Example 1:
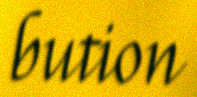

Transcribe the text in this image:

bution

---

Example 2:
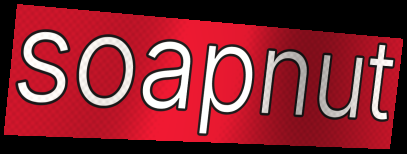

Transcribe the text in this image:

soapnut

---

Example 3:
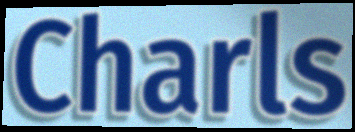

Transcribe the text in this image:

Charls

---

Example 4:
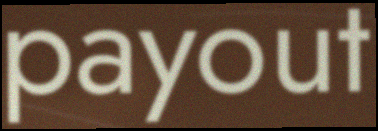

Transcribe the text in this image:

payout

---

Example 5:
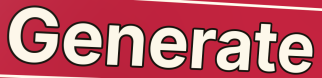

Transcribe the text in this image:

Generate